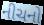
નીચનો